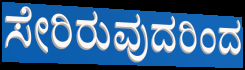
ಸೇರಿರುವುದರಿಂದ